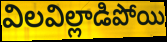
విలవిల్లాడిపోయి